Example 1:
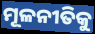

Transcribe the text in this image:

ମୂଳନୀତିକୁ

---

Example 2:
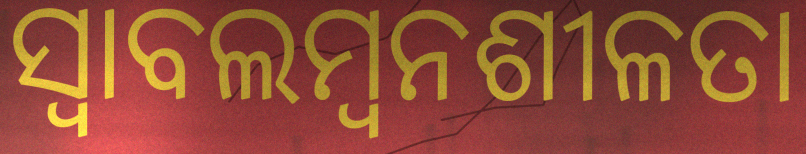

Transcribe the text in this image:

ସ୍ୱାବଲମ୍ୱନଶୀଳତା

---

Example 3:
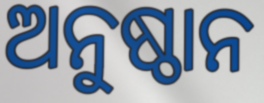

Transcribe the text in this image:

ଅନୁଷ୍ଠାନ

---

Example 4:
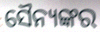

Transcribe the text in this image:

ସୈନ୍ୟଙ୍କର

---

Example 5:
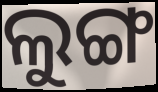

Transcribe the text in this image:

ଲୁଙ୍ଗ